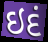
ઇદં